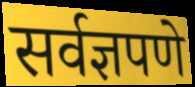
सर्वज्ञपणे